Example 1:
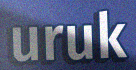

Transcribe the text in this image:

uruk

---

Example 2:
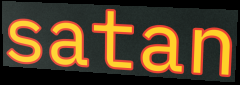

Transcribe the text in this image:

satan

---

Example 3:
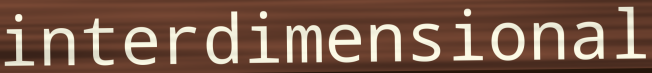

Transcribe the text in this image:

interdimensional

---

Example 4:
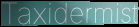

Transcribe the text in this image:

Taxidermist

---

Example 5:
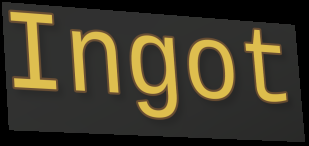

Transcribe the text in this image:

Ingot